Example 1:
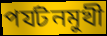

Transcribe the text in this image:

পর্যটনমুখী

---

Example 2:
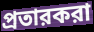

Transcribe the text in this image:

প্রতারকরা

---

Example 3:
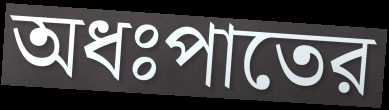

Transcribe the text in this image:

অধঃপাতের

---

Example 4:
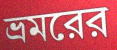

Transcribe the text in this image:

ভ্রমরের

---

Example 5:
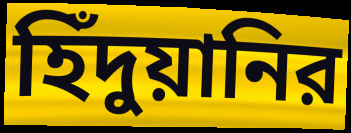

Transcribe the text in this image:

হিঁদুয়ানির